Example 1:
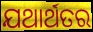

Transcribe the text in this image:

ଯଥାର୍ଥତର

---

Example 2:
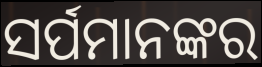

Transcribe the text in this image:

ସର୍ପମାନଙ୍କର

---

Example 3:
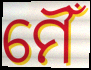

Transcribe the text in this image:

ମୈଁ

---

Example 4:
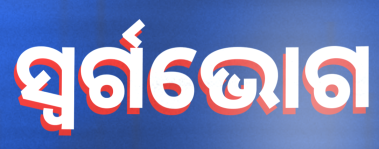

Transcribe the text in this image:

ସ୍ୱର୍ଗଭୋଗ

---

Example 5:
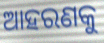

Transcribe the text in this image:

ଆହରଣକୁ